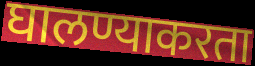
घालण्याकरता